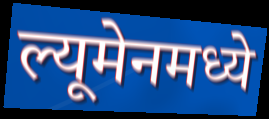
ल्यूमेनमध्ये